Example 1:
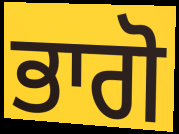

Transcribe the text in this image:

ਭਾਗੋ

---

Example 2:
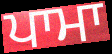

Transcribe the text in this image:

ਪਾਮਾ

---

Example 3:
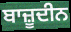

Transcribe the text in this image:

ਬਾਜ਼ੂਦੀਨ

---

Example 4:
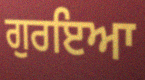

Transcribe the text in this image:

ਗੁਰਇਆ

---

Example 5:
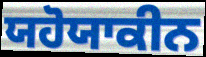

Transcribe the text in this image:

ਯਹੋਯਾਕੀਨ